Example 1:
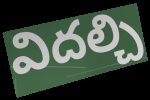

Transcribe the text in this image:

విదల్చి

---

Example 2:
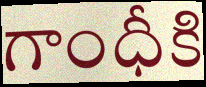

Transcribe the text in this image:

గాంధీకి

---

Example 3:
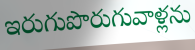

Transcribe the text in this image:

ఇరుగుపొరుగువాళ్లను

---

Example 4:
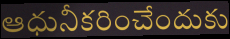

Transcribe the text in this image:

ఆధునీకరించేందుకు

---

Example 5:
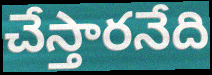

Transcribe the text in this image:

చేస్తారనేది